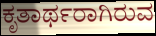
ಕೃತಾರ್ಥರಾಗಿರುವ